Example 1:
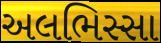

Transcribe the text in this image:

અલભિસ્સા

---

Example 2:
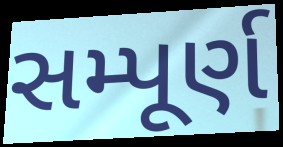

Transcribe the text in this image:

સમ્પૂર્ણ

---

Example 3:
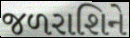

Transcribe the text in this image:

જળરાશિને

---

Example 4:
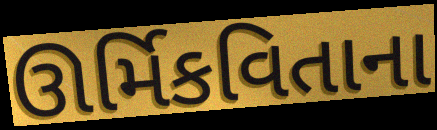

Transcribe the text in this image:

ઊર્મિકવિતાના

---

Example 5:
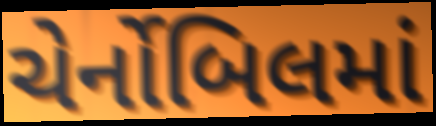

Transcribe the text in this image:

ચેર્નોબિલમાં